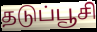
தடுப்பூசி